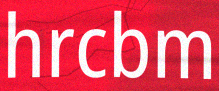
hrcbm